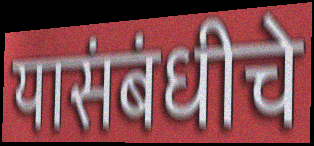
यासंबंधीचे